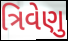
ત્રિવેણુ